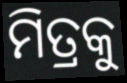
ମିତ୍ରକୁ